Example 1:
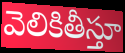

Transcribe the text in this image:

వెలికితీస్తూ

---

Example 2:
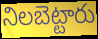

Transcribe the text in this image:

నిలబెట్టారు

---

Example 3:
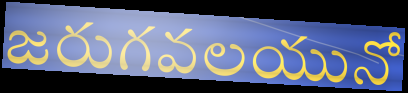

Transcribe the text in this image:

జరుగవలయునో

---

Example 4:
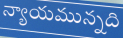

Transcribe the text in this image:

న్యాయమున్నది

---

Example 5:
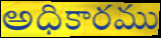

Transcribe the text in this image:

అధికారము